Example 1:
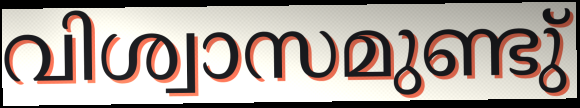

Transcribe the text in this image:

വിശ്വാസമുണ്ടു്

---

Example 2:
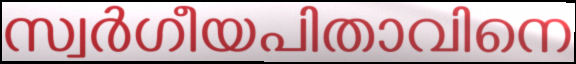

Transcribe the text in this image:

സ്വർഗീയപിതാവിനെ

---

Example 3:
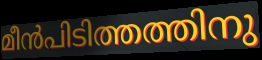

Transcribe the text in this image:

മീൻപിടിത്തത്തിനു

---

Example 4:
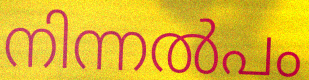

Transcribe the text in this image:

നിന്നൽപം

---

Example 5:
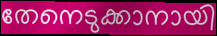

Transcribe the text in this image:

തേനെടുക്കാനായി